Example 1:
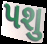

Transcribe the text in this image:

પશુ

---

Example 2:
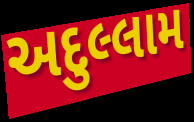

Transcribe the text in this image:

અદુલ્લામ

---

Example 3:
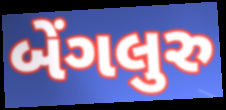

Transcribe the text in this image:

બેંગલુરુ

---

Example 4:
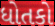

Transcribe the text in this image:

ધોતકો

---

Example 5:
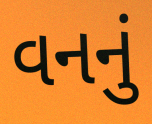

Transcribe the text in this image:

વનનું